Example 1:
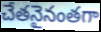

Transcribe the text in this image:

చేతనైనంతగా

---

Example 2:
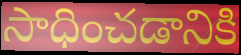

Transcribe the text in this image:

సాధించడానికి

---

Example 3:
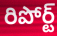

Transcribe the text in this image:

రిపోర్ట్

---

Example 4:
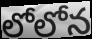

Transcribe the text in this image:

లోలోన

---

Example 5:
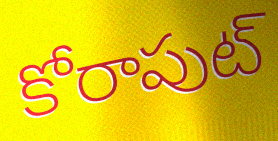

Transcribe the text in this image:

కోరాపుట్